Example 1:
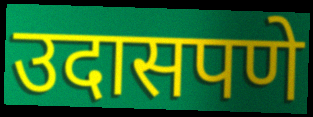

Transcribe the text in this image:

उदासपणे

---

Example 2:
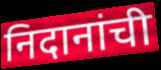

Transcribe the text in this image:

निदानांची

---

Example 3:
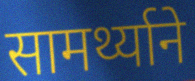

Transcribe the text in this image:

सामर्थ्याने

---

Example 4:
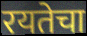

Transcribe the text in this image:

रयतेचा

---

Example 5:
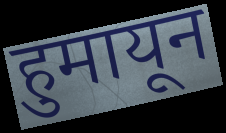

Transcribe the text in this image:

हुमायून